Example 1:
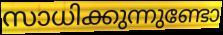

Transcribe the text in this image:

സാധിക്കുന്നുണ്ടോ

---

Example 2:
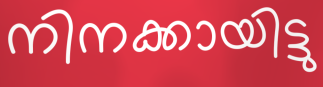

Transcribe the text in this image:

നിനക്കായിട്ടു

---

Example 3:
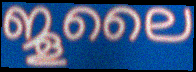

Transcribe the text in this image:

ജൂലൈ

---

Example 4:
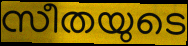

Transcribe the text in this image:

സീതയുടെ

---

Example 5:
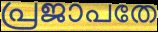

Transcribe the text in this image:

പ്രജാപതേ